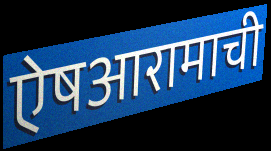
ऐषआरामाची